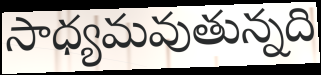
సాధ్యమవుతున్నది